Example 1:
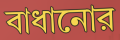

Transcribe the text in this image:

বাধানোর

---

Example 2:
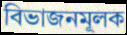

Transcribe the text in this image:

বিভাজনমূলক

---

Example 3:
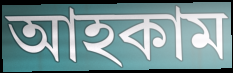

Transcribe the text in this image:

আহকাম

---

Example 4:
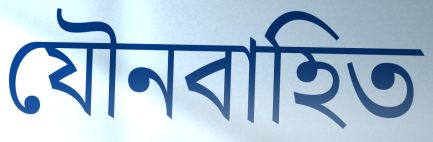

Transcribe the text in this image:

যৌনবাহিত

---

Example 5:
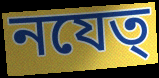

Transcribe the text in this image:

নযেত্